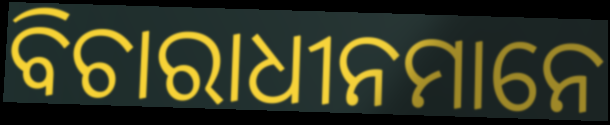
ବିଚାରାଧୀନମାନେ